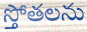
స్తోతలను